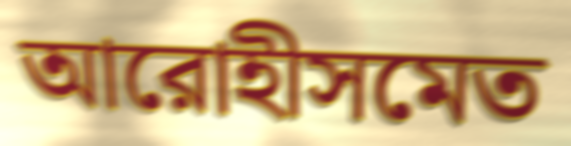
আরোহীসমেত